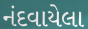
નંદવાયેલા